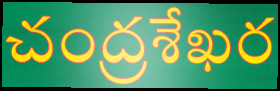
చంద్రశేఖర